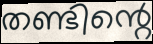
തണ്ടിന്റെ